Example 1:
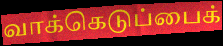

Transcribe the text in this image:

வாக்கெடுப்பைக்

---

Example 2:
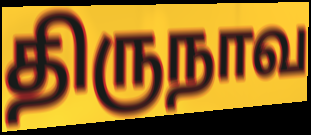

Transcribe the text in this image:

திருநாவ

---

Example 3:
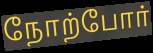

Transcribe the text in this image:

நோற்போர்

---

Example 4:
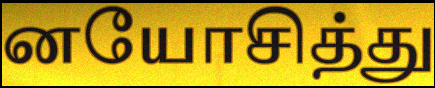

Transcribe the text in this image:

னயோசித்து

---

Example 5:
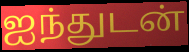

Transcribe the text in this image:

ஐந்துடன்